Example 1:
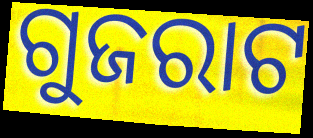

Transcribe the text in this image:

ଗୁଜରାଟ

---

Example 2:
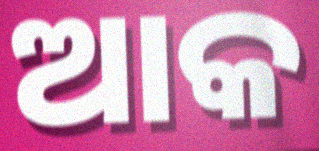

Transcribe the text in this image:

ଆକ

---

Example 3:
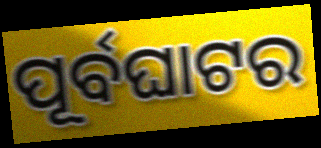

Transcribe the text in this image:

ପୂର୍ବଘାଟର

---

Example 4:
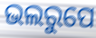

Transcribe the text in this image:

ଭଲରୁପେ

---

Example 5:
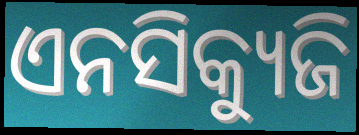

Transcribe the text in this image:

ଏନସିକ୍ୟୁଜି